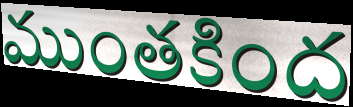
ముంతకింద